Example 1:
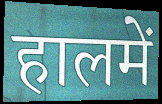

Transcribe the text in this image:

हालमें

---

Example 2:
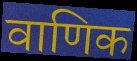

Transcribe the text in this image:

वाणिक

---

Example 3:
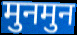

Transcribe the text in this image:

मुनमुन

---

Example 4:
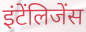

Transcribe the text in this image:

इंटेंलिजेंस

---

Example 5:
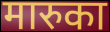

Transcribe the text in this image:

मारुका